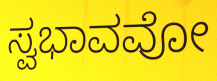
ಸ್ವಭಾವವೋ